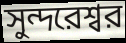
সুন্দরেশ্বর